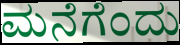
ಮನೆಗೆಂದು